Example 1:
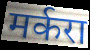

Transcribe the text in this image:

मर्करा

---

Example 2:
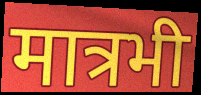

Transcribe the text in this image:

मात्रभी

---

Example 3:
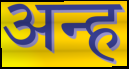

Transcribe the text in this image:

अन्ह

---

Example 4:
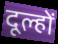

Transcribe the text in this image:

दूल्हों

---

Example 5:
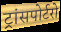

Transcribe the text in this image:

ट्रांसपोर्टरो